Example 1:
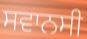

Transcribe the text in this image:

ਸਵਾਨਸੀ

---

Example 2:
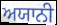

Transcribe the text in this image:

ਅਯਾਨੀ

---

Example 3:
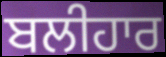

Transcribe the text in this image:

ਬਲੀਹਾਰ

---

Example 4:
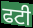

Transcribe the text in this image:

ਫਟੀ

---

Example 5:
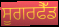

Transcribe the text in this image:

ਸੂਗਰਫੈੱਡ